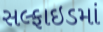
સલ્ફાઇડમાં